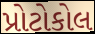
પ્રોટોકોલ